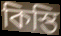
কিস্তি